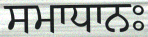
ਸਮਾਧਾਨਃ